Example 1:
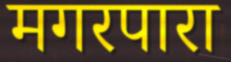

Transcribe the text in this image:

मगरपारा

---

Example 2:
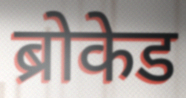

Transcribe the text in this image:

ब्रोकेड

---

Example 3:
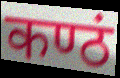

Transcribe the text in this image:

कण्ठं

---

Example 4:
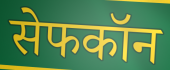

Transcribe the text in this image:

सेफकॉन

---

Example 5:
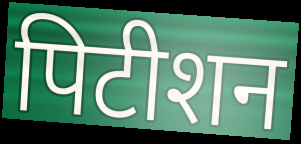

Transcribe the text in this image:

पिटीशन